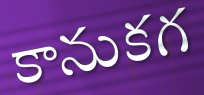
కానుకగ